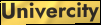
Univercity